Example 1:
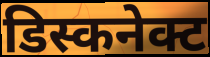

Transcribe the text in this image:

डिस्कनेक्ट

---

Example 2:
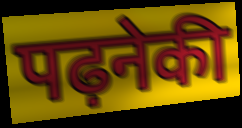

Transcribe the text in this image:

पढ़नेकी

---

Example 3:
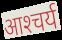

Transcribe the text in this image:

आश्‍चर्य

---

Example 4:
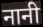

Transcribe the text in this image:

नानी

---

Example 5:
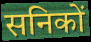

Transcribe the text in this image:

सनिकों